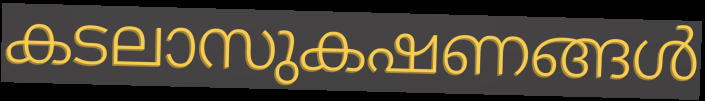
കടലാസുകഷണങ്ങൾ